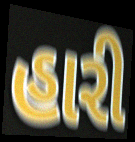
હારી